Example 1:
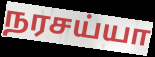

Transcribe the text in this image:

நரசய்யா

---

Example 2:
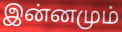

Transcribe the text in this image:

இன்னமும்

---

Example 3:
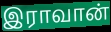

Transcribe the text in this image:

இராவான்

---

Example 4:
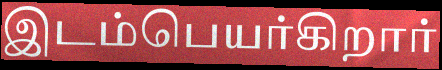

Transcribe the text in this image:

இடம்பெயர்கிறார்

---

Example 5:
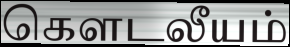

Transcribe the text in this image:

கெளடலீயம்